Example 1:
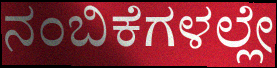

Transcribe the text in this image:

ನಂಬಿಕೆಗಳಲ್ಲೇ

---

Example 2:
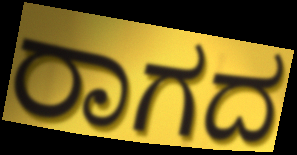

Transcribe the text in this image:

ರಾಗದ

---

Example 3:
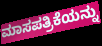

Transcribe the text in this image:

ಮಾಸಪತ್ರಿಕೆಯನ್ನು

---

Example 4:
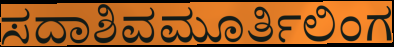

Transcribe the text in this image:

ಸದಾಶಿವಮೂರ್ತಿಲಿಂಗ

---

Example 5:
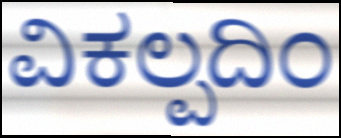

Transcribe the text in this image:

ವಿಕಲ್ಪದಿಂ